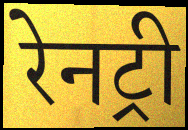
रेनट्री